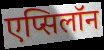
एप्सिलॉन